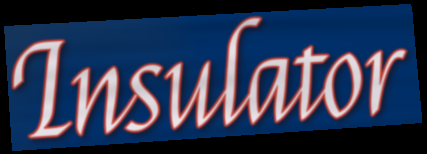
Insulator